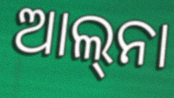
ଆଲ୍‍ନା